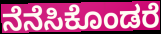
ನೆನೆಸಿಕೊಂಡರೆ